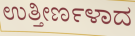
ಉತ್ತೀರ್ಣಳಾದ